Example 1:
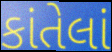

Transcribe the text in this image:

કાંતેલાં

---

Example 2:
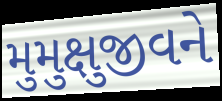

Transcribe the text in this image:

મુમુક્ષુજીવને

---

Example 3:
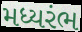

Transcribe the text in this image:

મધ્યરંભ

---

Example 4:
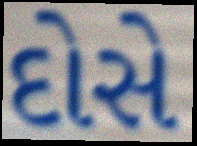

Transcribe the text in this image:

દોસે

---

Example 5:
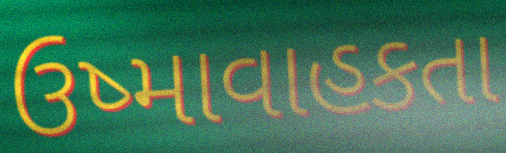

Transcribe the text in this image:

ઉષ્માવાહકતા